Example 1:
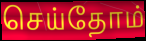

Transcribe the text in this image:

செய்தோம்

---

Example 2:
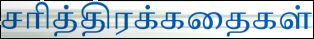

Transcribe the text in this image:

சரித்திரக்கதைகள்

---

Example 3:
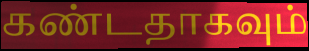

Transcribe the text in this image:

கண்டதாகவும்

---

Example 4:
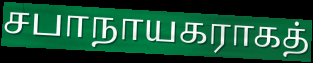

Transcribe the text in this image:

சபாநாயகராகத்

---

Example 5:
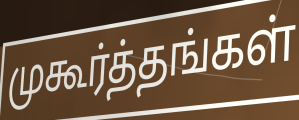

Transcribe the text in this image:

முகூர்த்தங்கள்